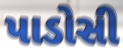
પાડોસી